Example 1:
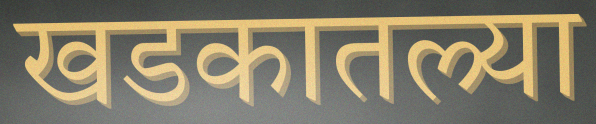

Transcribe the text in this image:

खडकातल्या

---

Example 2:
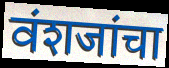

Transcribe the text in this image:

वंशजांचा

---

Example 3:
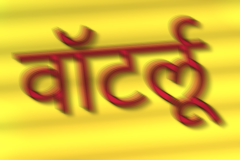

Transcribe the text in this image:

वॉटर्लू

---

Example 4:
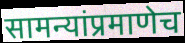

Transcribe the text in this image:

सामन्यांप्रमाणेच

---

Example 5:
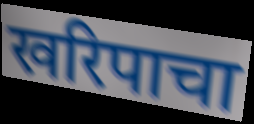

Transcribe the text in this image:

खरिपाचा